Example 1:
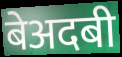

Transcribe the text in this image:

बेअदबी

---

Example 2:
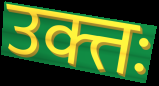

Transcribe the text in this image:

उक्तः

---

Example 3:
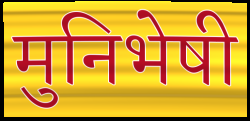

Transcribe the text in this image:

मुनिभेषी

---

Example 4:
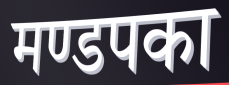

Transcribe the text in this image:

मण्डपका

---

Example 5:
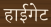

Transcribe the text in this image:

हाईगेट